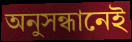
অনুসন্ধানেই